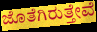
ಜೊತೆಗಿರುತ್ತೇವೆ